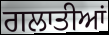
ਗਲਾਤੀਆਂ